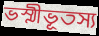
ভস্মীভূতস্য